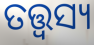
ତତ୍ତ୍ୱସ୍ୟ